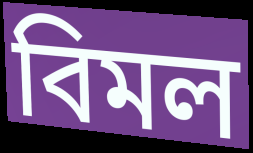
বিমল